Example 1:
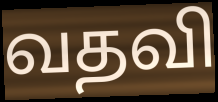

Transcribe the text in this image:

வதவி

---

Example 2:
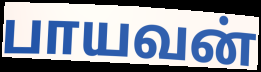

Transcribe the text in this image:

பாயவன்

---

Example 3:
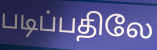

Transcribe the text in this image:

படிப்பதிலே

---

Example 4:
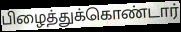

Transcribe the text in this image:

பிழைத்துக்கொண்டார்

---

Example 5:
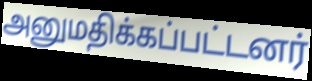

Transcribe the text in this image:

அனுமதிக்கப்பட்டனர்